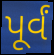
પૂર્વં